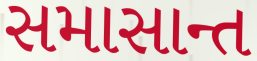
સમાસાન્ત